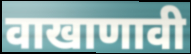
वाखाणावी